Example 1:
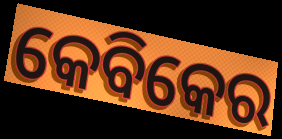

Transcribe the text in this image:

କେବିକେର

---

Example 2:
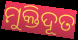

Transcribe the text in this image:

ମୁକ୍ତିଦୂତ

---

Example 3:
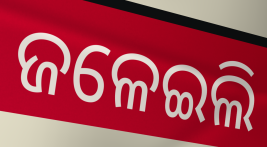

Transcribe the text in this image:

ଜଳେଇଲି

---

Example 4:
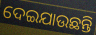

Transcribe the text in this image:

ଦେଇଯାଉଛନ୍ତି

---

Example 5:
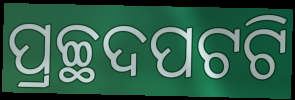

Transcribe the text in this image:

ପ୍ରଚ୍ଛଦପଟଟି